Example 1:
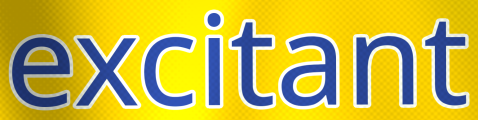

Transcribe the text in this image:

excitant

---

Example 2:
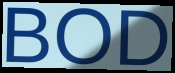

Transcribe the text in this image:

BOD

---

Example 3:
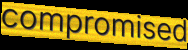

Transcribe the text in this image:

compromised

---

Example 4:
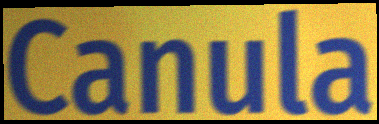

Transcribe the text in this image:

Canula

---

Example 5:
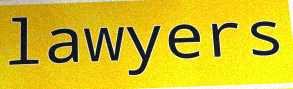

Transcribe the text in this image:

lawyers